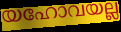
യഹോവയല്ല